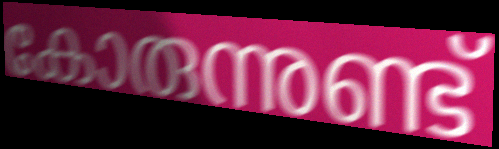
കോരുന്നുണ്ട്